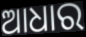
ଆଧାର